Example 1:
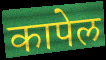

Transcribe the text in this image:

कापेल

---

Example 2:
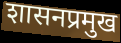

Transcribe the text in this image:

शासनप्रमुख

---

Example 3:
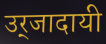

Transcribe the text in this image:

उर्जादायी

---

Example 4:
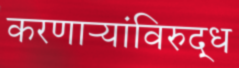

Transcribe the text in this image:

करणाऱ्यांविरुद्ध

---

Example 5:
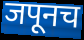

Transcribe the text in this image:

जपूनच